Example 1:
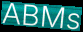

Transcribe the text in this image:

ABMs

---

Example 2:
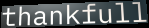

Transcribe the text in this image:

thankfull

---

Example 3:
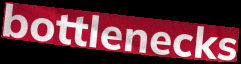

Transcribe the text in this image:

bottlenecks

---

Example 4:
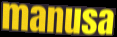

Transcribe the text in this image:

manusa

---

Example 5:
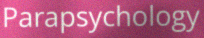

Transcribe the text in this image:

Parapsychology